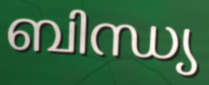
ബിന്ധ്യ